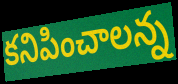
కనిపించాలన్న